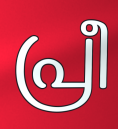
പ്രീ